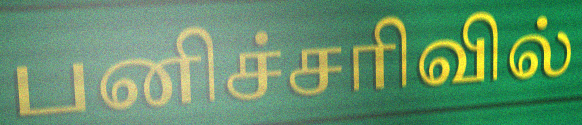
பனிச்சரிவில்